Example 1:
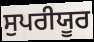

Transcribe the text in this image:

ਸੁਪਰੀਯੂਰ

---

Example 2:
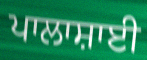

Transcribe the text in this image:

ਪਾਲਾਸ਼ਾਈ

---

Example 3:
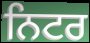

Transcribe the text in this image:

ਨਿਟਰ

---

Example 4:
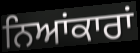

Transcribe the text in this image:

ਨਿਆਂਕਾਰਾਂ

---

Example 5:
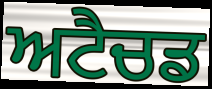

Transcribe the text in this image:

ਅਟੈਚਡ